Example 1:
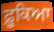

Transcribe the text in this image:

ਫ਼ੂਕਿਆ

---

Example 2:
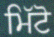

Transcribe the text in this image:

ਮਿੱਟੋ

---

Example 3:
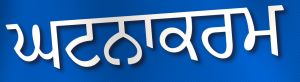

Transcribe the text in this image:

ਘਟਨਾਕਰਮ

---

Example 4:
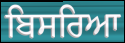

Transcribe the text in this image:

ਬਿਸਰਿਆ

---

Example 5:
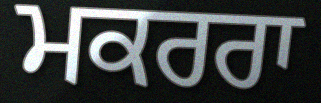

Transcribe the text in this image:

ਮਕਰਰਾ